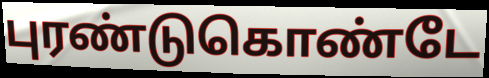
புரண்டுகொண்டே